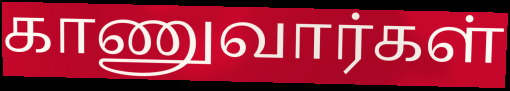
காணுவார்கள்